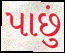
પાછું